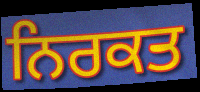
ਨਿਰਕਤ